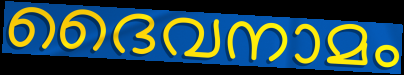
ദൈവനാമം